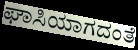
ಘಾಸಿಯಾಗದಂತೆ